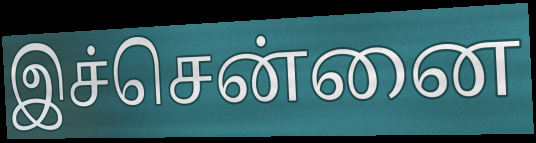
இச்சென்னை